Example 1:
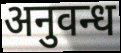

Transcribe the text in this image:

अनुवन्ध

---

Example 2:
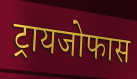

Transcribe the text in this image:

ट्रायजोफास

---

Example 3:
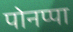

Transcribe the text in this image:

पोनप्‍पा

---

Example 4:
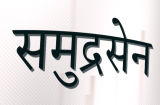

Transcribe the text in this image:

समुद्रसेन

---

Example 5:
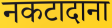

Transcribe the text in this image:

नकटादाना